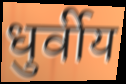
धुर्वीय